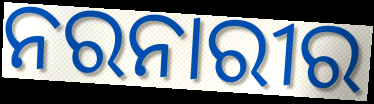
ନରନାରୀର